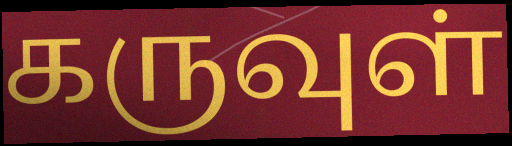
கருவுள்